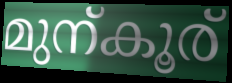
മുന്കൂര്